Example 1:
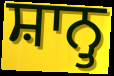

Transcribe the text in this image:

ਸ਼ਾਨ੍ਤ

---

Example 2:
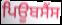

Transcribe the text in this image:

ਪਿਊਬਸੈਂਸ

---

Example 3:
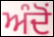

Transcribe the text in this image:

ਅੰਦੋਂ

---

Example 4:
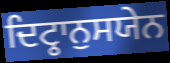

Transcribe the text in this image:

ਦਿਟ੍ਠਾਨੁਸਯੇਨ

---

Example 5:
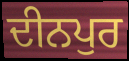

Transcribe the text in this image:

ਦੀਨਪੁਰ